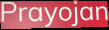
Prayojan